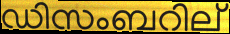
ഡിസംബറില്